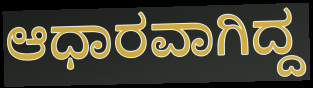
ಆಧಾರವಾಗಿದ್ದ